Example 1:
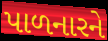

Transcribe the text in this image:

પાળનારને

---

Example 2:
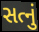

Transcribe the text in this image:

સત્નું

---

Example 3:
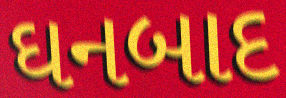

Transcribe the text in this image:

ઘનબાદ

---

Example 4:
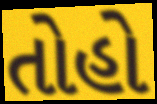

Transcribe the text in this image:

તોહો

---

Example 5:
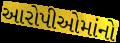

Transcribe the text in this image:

આરોપીઓમાંનો